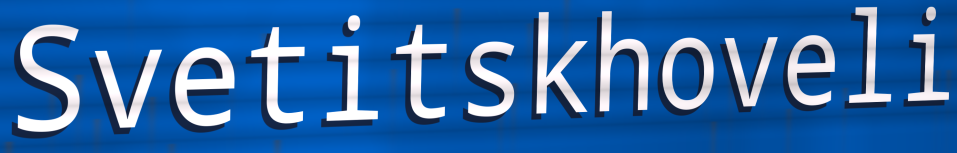
Svetitskhoveli